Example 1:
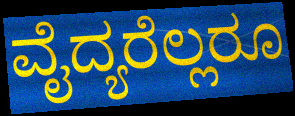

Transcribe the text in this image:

ವೈದ್ಯರೆಲ್ಲರೂ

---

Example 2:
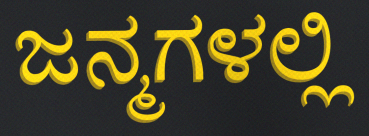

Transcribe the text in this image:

ಜನ್ಮಗಳಲ್ಲಿ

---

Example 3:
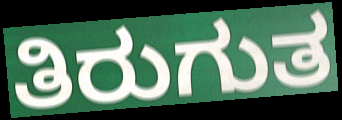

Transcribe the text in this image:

ತಿರುಗುತ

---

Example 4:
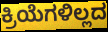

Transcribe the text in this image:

ಕ್ರಿಯೆಗಳಿಲ್ಲದ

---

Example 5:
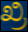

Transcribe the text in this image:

ಖ್ರಿ